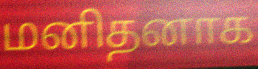
மனிதனாக